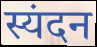
स्यंदन